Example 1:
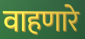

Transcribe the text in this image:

वाहणारे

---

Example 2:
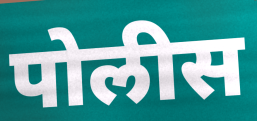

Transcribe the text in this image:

पोलीस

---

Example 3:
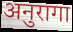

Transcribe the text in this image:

अनुरागा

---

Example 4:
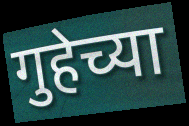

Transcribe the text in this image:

गुहेच्या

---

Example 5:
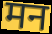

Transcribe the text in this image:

मन